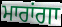
ਮਾਰਾਂਗਾ